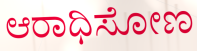
ಆರಾಧಿಸೋಣ